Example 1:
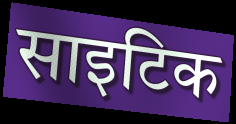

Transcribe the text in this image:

साइटिक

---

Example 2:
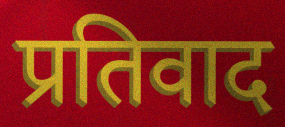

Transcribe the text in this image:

प्रतिवाद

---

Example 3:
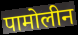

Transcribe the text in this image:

पामोलीन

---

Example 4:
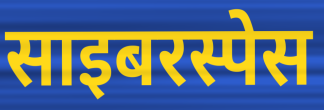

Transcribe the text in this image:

साइबरस्पेस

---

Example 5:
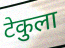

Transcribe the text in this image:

टेकुला